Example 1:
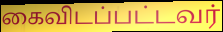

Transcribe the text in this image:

கைவிடப்பட்டவர்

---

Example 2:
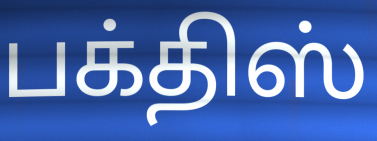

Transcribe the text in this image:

பக்திஸ்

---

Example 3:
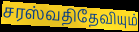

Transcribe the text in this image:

சரஸ்வதிதேவியும்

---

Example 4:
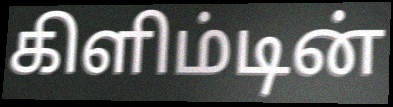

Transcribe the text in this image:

கிளிம்டின்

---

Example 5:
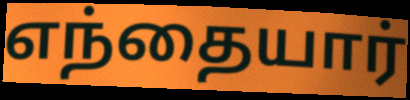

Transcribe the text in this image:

எந்தையார்